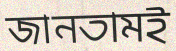
জানতামই